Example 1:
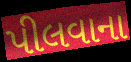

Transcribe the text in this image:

પીલવાના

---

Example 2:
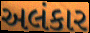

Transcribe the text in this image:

અલંકાર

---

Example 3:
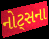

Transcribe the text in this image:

નોટ્સના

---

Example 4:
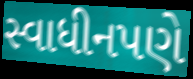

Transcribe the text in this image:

સ્વાધીનપણે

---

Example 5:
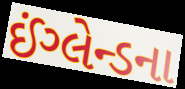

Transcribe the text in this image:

ઈંગ્લેન્ડના